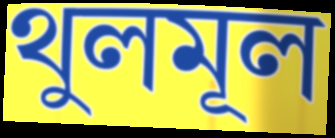
থুলমূল